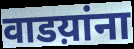
वाडय़ांना